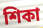
শিকা